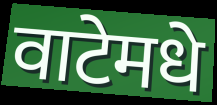
वाटेमधे